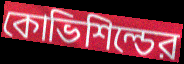
কোভিশিল্ডের